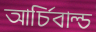
আর্চিবাল্ড